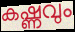
കഷ്ണവും